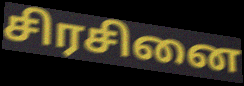
சிரசினை